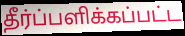
தீர்ப்பளிக்கப்பட்ட